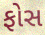
ફોસ